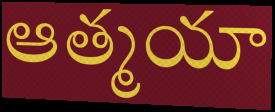
ఆత్మయా